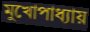
মুখোপাধ্যায়